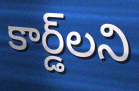
కార్డ్‌లని